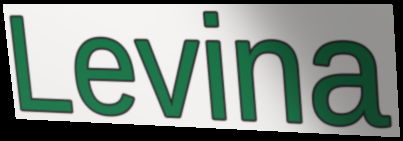
Levina